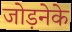
जोड़नेके